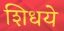
शिधये